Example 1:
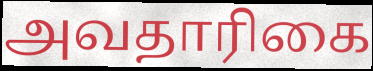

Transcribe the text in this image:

அவதாரிகை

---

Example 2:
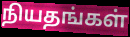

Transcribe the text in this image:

நியதங்கள்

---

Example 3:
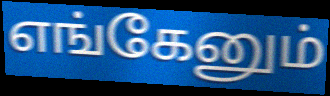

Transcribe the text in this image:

எங்கேனும்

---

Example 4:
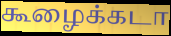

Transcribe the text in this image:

கூழைக்கடா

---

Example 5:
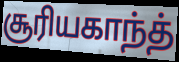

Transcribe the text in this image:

சூரியகாந்த்